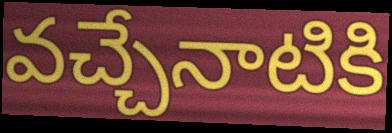
వచ్చేనాటికి